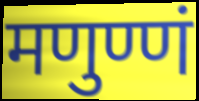
मणुण्णं